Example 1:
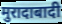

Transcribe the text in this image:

मुरादाबादी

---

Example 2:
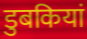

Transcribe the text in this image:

डुबकियां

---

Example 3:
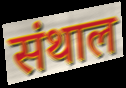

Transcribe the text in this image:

संथाल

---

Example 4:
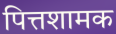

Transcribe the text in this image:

पित्तशामक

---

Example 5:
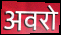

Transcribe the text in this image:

अवरो